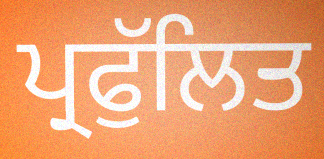
ਪ੍ਰਫੁੱਲਿਤ